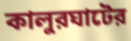
কালুরঘাটের